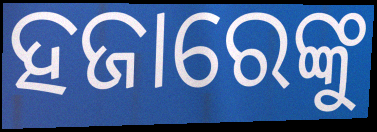
ହଜାରେଙ୍କୁ